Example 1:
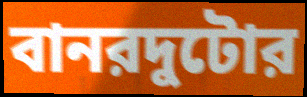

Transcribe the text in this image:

বানরদুটোর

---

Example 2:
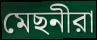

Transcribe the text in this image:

মেছনীরা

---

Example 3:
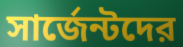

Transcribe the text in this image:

সার্জেন্টদের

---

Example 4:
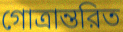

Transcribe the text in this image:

গোত্রান্তরিত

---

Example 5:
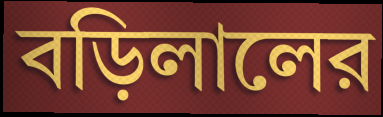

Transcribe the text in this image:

বড়িলালের